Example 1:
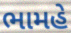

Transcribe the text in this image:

ભામહે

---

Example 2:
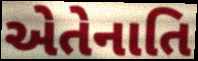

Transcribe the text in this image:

એતેનાતિ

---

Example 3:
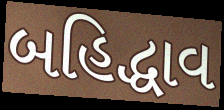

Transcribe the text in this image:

બહિદ્ધાવ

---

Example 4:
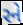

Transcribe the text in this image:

રને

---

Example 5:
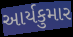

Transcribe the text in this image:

આર્યકુમાર